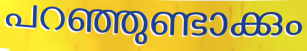
പറഞ്ഞുണ്ടാക്കും